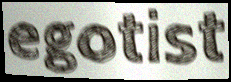
egotist